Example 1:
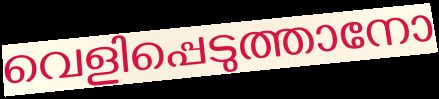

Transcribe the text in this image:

വെളിപ്പെടുത്താനോ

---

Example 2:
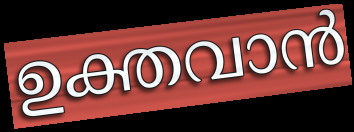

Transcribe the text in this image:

ഉക്തവാൻ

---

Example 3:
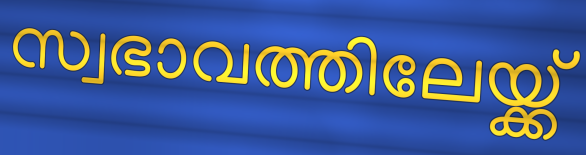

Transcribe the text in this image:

സ്വഭാവത്തിലേയ്ക്ക്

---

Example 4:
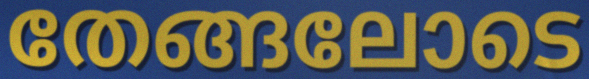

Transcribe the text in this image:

തേങ്ങലോടെ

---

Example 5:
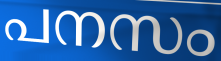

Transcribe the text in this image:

പനസം